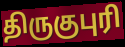
திருகுபுரி